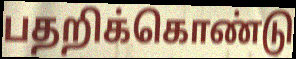
பதறிக்கொண்டு